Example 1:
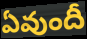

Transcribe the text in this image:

ఏవుందీ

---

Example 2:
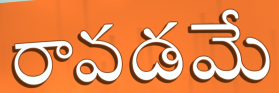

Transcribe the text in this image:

రావడమే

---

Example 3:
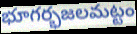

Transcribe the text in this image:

భూగర్భజలమట్టం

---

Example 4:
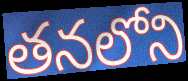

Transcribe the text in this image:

తనలోని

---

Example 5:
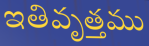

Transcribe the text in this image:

ఇతివృత్తము